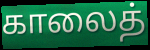
காலைத்